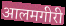
आलमगीरी